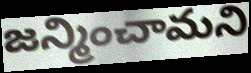
జన్మించామని